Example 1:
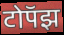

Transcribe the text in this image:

टोपॅझ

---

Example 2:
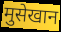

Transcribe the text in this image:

मुसेखान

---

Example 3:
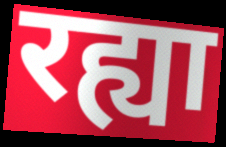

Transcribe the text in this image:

रह्या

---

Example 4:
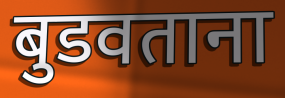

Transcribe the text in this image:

बुडवताना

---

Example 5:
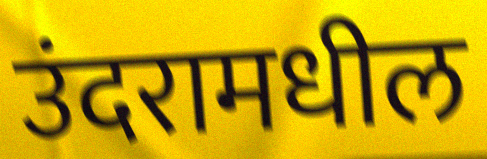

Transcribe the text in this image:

उंदरामधील